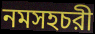
নমসহচরী